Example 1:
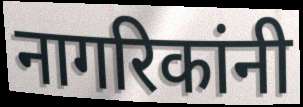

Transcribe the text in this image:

नागरिकांनी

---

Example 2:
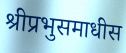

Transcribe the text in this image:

श्रीप्रभुसमाधीस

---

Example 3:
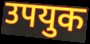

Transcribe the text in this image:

उपयुक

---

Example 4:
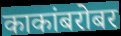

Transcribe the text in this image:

काकांबरोबर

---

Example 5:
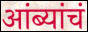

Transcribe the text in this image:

आंब्यांचं